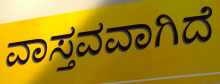
ವಾಸ್ತವವಾಗಿದೆ